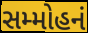
સમ્મોહનં